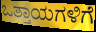
ಒತ್ತಾಯಗಳಿಗೆ